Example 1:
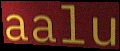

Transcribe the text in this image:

aalu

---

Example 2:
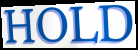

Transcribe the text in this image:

HOLD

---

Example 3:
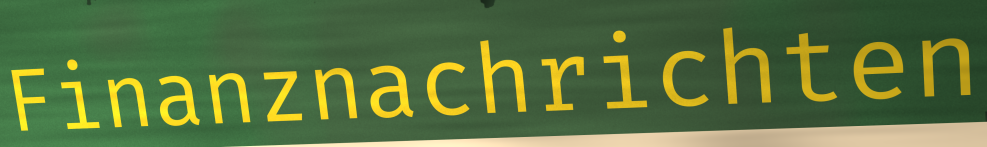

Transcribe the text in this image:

Finanznachrichten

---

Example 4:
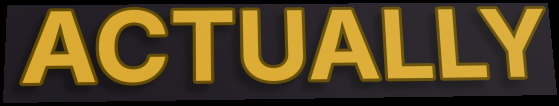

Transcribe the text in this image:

ACTUALLY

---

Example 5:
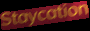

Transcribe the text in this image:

Staycation